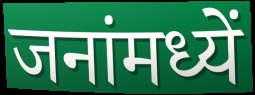
जनांमध्यें